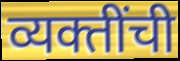
व्‍यक्‍तींची